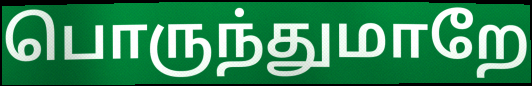
பொருந்துமாறே